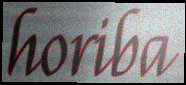
horiba